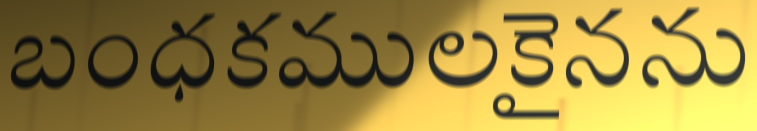
బంధకములకైనను